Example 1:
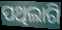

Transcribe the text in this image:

ପଥିଲାଗି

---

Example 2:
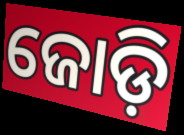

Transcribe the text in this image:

ଜୋଡ଼ି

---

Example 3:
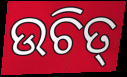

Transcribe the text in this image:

ଉଚିତ୍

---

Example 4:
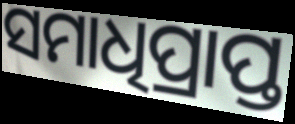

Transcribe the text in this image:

ସମାଧିପ୍ରାପ୍ତ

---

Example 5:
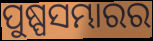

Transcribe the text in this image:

ପୁଷ୍ପସମ୍ଭାରର